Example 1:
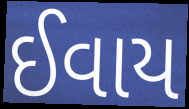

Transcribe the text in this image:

ઈવાય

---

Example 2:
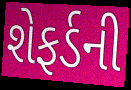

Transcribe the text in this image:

શેફર્ડની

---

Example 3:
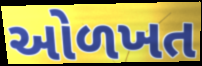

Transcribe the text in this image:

ઓળખત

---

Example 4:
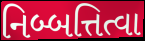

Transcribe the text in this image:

નિબ્બત્તિત્વા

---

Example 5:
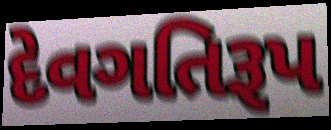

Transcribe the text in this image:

દેવગતિરૂપ